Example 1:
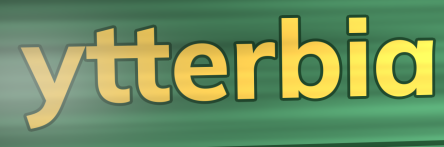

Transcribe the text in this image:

ytterbia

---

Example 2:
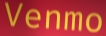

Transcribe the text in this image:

Venmo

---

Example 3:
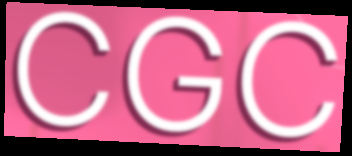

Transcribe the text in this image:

CGC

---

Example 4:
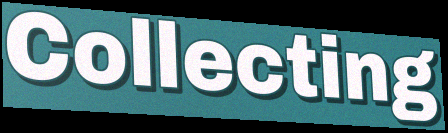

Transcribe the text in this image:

Collecting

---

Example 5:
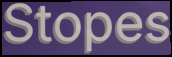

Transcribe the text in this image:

Stopes